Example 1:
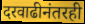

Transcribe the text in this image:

दरवाढीनंतरही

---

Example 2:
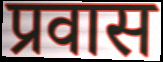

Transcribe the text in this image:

प्रवास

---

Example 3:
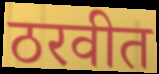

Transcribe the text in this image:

ठरवीत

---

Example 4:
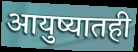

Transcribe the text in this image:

आयुष्यातही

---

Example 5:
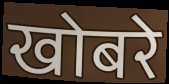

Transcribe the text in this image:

खोबरे